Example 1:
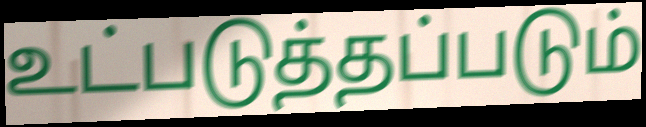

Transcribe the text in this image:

உட்படுத்தப்படும்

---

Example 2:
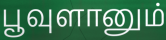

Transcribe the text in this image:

பூவுளானும்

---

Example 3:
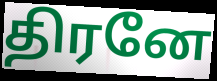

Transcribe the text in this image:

திரனே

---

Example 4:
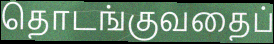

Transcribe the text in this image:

தொடங்குவதைப்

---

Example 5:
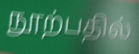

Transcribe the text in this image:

நூற்பதில்